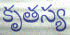
కృతస్య